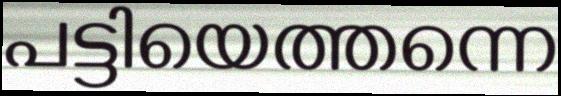
പട്ടിയെത്തന്നെ